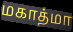
மகாத்மா